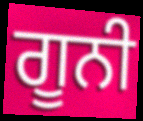
ਗੂਨੀ